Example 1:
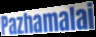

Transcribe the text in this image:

Pazhamalai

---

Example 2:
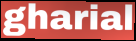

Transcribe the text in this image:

gharial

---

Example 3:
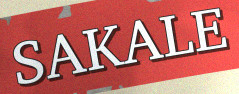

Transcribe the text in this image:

SAKALE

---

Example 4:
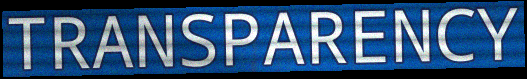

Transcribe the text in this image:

TRANSPARENCY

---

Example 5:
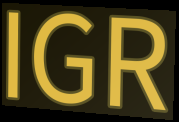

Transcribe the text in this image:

IGR